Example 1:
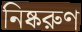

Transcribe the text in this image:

নিষ্করুণ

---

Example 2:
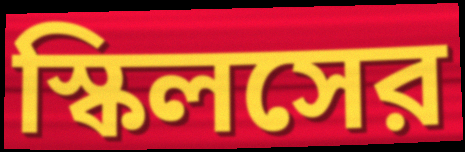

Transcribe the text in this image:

স্কিলসের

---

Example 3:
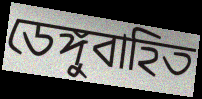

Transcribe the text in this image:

ডেঙ্গুবাহিত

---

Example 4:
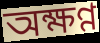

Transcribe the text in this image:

অক্ষণ্ন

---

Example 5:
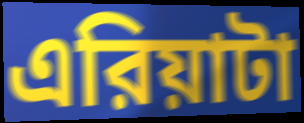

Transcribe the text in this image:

এরিয়াটা